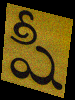
షీ